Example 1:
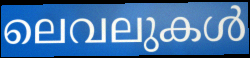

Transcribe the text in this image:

ലെവലുകൾ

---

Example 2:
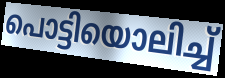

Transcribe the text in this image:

പൊട്ടിയൊലിച്ച്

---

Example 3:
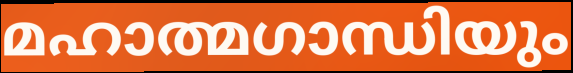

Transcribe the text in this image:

മഹാത്മഗാന്ധിയും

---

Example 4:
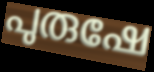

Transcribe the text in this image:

പുരുഷേ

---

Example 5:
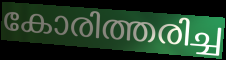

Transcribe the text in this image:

കോരിത്തരിച്ച